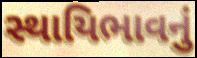
સ્થાયિભાવનું